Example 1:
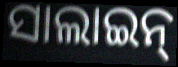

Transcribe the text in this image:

ସାଲାଇନ୍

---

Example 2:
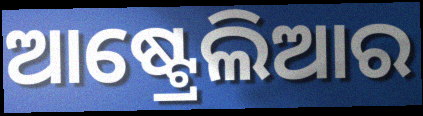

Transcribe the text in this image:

ଆଷ୍ଟ୍ରେଲିଆର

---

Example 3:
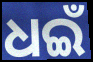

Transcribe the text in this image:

ଧଇଁ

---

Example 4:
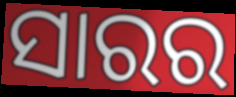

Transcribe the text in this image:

ସାରର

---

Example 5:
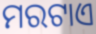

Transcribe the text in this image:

ମରଟାଏ